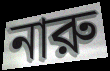
নারু